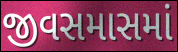
જીવસમાસમાં